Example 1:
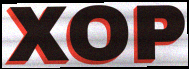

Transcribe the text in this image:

XOP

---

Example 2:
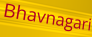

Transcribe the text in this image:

Bhavnagari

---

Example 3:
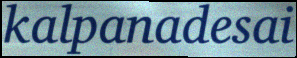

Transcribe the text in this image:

kalpanadesai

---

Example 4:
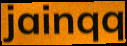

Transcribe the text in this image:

jainqq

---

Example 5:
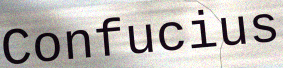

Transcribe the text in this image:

Confucius